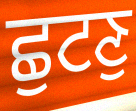
ਛੁਟਣੁ